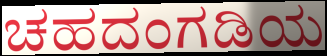
ಚಹದಂಗಡಿಯ